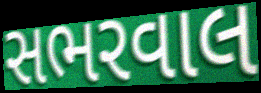
સભરવાલ